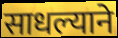
साधल्याने